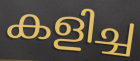
കളിച്ച